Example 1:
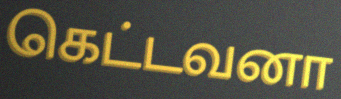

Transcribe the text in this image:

கெட்டவனா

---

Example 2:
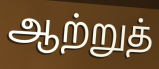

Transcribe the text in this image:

ஆற்றுத்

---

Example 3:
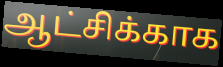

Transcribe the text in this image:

ஆட்சிக்காக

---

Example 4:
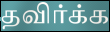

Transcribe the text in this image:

தவிர்க்க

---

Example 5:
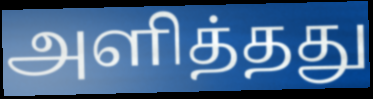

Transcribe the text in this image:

அளித்தது